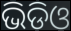
ଭିଡିଓ